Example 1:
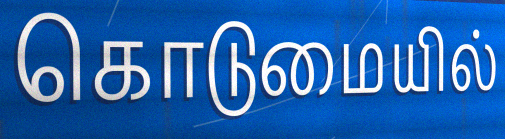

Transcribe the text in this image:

கொடுமையில்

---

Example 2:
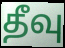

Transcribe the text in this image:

தீவு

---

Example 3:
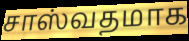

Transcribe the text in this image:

சாஸ்வதமாக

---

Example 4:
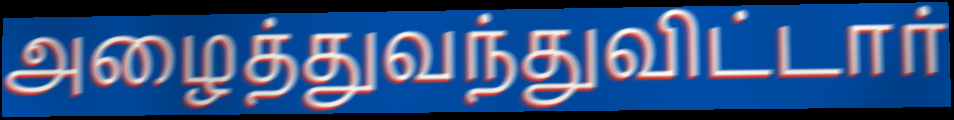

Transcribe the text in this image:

அழைத்துவந்துவிட்டார்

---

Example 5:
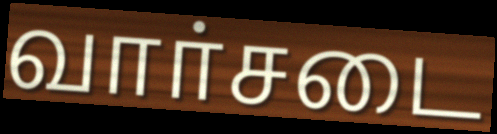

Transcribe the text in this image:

வார்சடை